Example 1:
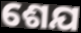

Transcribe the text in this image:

ଶେଯ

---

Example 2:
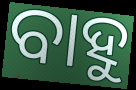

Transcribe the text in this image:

ବାହୁ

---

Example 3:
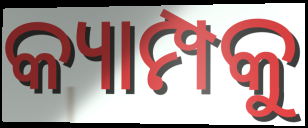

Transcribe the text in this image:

କ୍ୟାମ୍ପକୁ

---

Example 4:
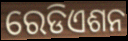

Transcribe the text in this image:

ରେଡିଏଶନ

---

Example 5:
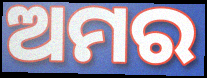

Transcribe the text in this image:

ଅମର